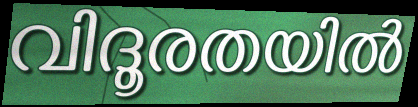
വിദൂരതയിൽ